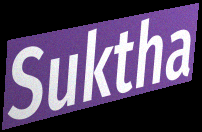
Suktha